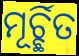
ମୂର୍ଚ୍ଛିତ